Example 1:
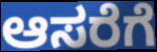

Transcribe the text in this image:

ಆಸರೆಗೆ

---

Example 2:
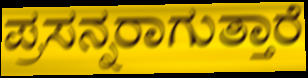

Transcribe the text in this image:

ಪ್ರಸನ್ನರಾಗುತ್ತಾರೆ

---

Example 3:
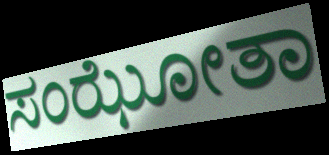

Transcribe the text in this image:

ಸಂಝೋತಾ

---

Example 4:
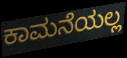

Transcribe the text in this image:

ಕಾಮನೆಯಲ್ಲ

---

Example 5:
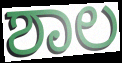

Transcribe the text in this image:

ಶಾಲ